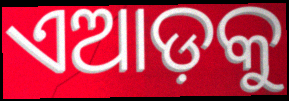
ଏଆଡ଼କୁ